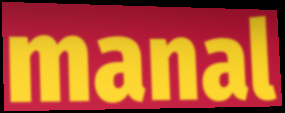
manal